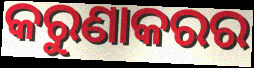
କରୁଣାକରର